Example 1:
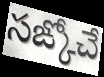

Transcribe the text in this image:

సఙ్కోచే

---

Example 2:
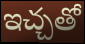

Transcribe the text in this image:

ఇచ్చతో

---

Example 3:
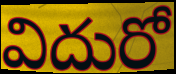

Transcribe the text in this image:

విదురో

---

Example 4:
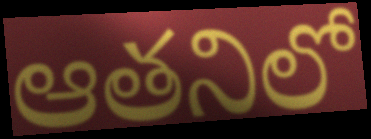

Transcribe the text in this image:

ఆతనిలో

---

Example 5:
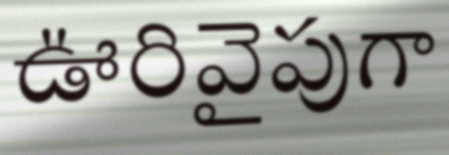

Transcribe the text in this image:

ఊరివైపుగా